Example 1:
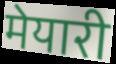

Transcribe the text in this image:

मेयारी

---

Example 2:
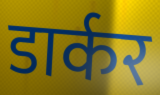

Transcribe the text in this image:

डार्कर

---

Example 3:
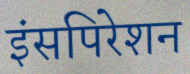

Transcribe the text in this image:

इंसपिरेशन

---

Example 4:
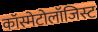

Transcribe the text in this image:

कॉस्मेटोलॉजिस्ट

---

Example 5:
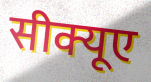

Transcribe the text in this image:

सीक्यूए